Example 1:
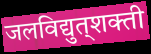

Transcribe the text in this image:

जलविद्युत्‌शक्ती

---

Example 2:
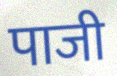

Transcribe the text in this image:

पाजी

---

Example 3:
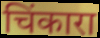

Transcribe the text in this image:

चिंकारा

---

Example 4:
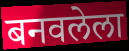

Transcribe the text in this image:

बनवलेला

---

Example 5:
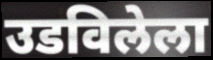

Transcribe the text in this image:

उडविलेला